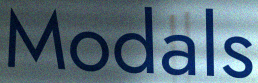
Modals